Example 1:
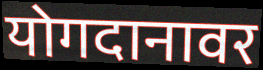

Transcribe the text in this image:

योगदानावर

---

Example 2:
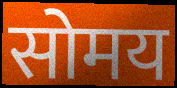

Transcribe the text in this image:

सोमय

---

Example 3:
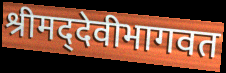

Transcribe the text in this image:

श्रीमद्‌देवीभागवत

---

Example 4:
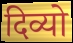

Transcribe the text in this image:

दिव्यो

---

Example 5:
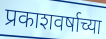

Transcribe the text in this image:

प्रकाशवर्षाच्या